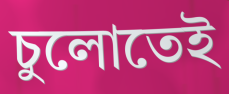
চুলোতেই